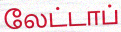
லேட்டாப்